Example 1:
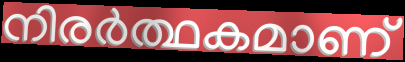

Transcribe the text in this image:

നിരർത്ഥകമാണ്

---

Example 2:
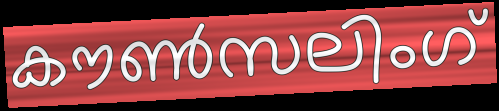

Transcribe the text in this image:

കൗൺസലിംഗ്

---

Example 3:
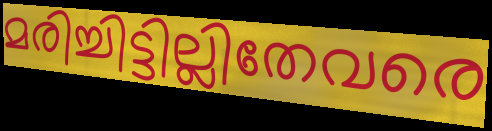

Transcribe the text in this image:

മരിച്ചിട്ടില്ലിതേവരെ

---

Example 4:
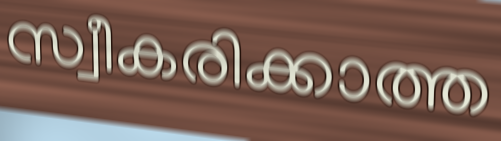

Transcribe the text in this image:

സ്വീകരിക്കാത്ത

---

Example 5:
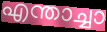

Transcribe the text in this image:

എന്താച്ചാ